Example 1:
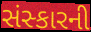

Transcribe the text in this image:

સંસ્કારની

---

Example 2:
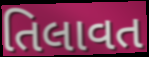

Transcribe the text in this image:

તિલાવત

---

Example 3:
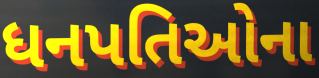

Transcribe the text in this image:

ધનપતિઓના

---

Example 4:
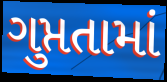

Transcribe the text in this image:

ગુપ્તતામાં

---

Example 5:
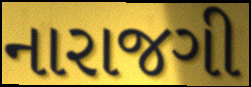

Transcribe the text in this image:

નારાજગી